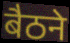
बैठने